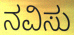
ನವಿಸು